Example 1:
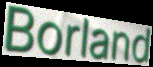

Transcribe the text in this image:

Borland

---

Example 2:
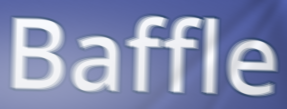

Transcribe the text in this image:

Baffle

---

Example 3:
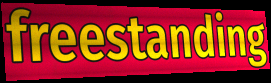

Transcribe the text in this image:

freestanding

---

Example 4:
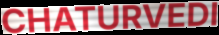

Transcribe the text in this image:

CHATURVEDI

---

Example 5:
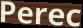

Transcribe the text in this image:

Perec